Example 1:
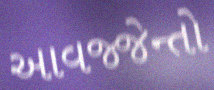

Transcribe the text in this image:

આવજ્જેન્તો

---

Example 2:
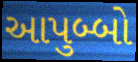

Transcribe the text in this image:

આપુબ્બો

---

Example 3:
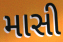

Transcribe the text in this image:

માસી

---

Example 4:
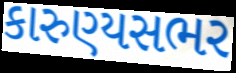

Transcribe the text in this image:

કારુણ્યસભર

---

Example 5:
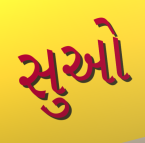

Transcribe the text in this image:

સુઓ